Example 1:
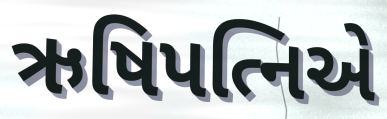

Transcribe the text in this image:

ઋષિપત્નિએ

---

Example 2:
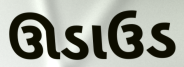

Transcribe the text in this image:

ઊડાઉડ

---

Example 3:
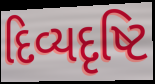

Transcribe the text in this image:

દિવ્યદૃષ્ટિ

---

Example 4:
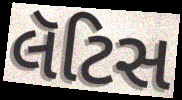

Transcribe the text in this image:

લૅટિસ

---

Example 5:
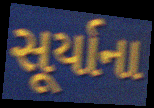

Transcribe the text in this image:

સૂર્યાના